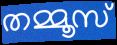
തമ്മൂസ്